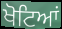
ਖੋਟਿਆਂ